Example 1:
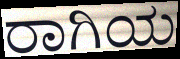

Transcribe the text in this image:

ರಾಗಿಯ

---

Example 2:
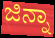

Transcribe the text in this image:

ಜಿನ್ನಾ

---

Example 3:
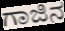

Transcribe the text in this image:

ಗಾಜಿನ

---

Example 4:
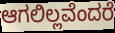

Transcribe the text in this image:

ಆಗಲಿಲ್ಲವೆಂದರೆ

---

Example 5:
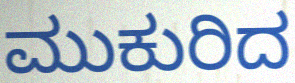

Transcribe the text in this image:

ಮುಕುರಿದ